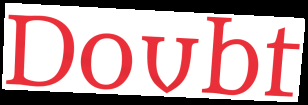
Doubt